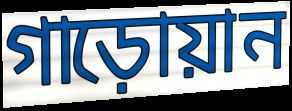
গাড়োয়ান